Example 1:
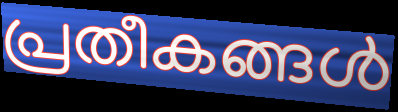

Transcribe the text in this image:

പ്രതീകങ്ങൾ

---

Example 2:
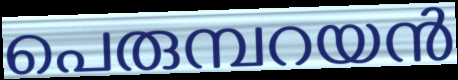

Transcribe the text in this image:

പെരുമ്പറയൻ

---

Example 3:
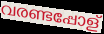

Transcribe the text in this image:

വരണ്ടപ്പോള്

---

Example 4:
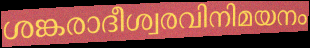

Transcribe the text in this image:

ശങ്കരാദീശ്വരവിനിമയനം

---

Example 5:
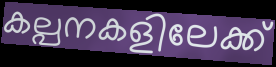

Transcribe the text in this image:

കല്പനകളിലേക്ക്